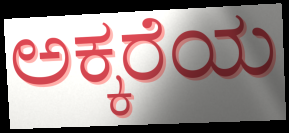
ಅಕ್ಕರೆಯ